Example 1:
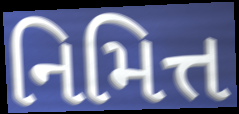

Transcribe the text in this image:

નિમિત્ત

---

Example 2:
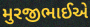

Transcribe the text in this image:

મુરજીભાઈએ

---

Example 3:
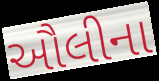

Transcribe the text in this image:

ઔલીના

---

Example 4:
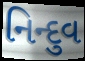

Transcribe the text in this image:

નિન્દુવ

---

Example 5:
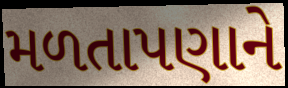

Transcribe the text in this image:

મળતાપણાને